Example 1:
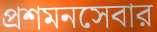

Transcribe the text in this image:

প্রশমনসেবার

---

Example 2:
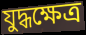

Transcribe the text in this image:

যুদ্ধক্ষেত্র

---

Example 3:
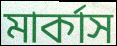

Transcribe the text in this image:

মার্কাস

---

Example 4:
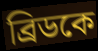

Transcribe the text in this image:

ব্রিডকে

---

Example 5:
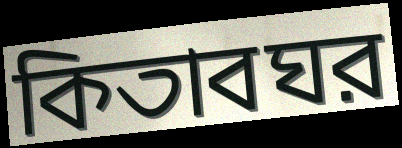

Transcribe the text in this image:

কিতাবঘর